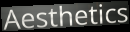
Aesthetics